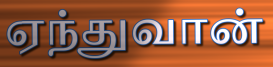
ஏந்துவான்